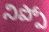
నిప్పో